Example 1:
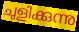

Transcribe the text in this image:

ചുളിക്കുന്നു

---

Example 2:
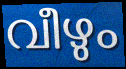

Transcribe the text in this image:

വീഴും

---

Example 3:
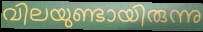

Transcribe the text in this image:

വിലയുണ്ടായിരുന്നു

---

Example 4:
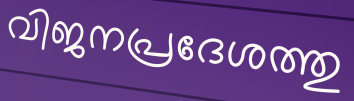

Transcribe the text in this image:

വിജനപ്രദേശത്തു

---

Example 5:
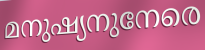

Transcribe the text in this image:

മനുഷ്യനുനേരെ